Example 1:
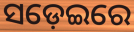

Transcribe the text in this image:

ସଡ଼େଇରେ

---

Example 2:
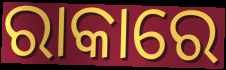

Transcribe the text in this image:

ରାକାରେ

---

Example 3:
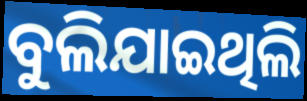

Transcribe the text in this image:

ବୁଲିଯାଇଥିଲି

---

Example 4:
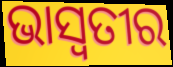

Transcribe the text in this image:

ଭାସ୍ଵତୀର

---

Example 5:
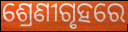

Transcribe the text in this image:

ଶ୍ରେଣୀଗୃହରେ